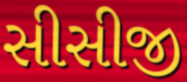
સીસીજી